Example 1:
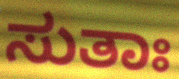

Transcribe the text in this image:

ಸುತಾಃ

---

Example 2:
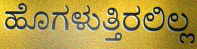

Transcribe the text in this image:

ಹೊಗಳುತ್ತಿರಲಿಲ್ಲ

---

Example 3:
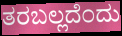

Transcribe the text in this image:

ತರಬಲ್ಲದೆಂದು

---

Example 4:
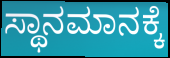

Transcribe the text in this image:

ಸ್ಥಾನಮಾನಕ್ಕೆ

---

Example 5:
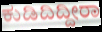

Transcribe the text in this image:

ಕುಡಿದಿದ್ದೀರಾ